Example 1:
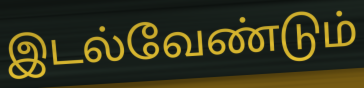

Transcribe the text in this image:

இடல்வேண்டும்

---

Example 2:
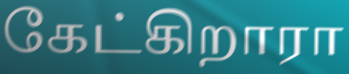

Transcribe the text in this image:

கேட்கிறாரா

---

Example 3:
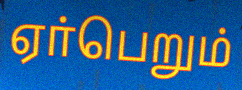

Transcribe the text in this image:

ஏர்பெறும்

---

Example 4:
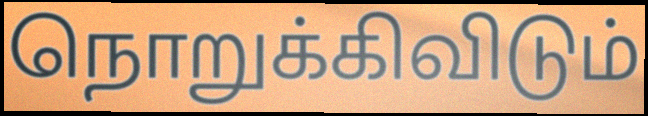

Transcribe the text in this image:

நொறுக்கிவிடும்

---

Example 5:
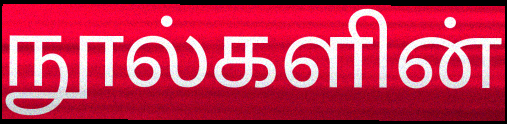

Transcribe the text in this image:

நூல்களின்